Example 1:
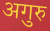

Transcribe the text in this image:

अगुरु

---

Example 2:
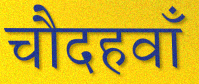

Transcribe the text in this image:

चौदहवाँ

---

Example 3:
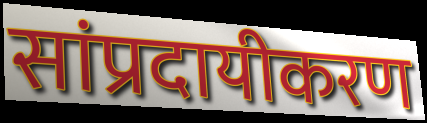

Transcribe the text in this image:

सांप्रदायीकरण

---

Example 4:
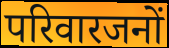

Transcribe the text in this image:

परिवारजनों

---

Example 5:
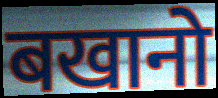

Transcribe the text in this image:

बखानो